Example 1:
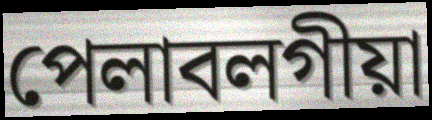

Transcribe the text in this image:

পেলাবলগীয়া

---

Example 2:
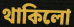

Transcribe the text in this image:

থাকিলো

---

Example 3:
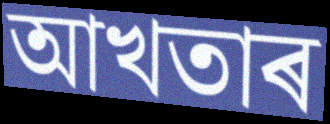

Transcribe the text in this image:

আখতাৰ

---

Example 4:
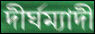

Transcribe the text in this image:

দীৰ্ঘম্যাদী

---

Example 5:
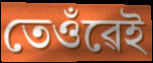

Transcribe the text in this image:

তেওঁৱেই